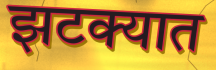
झटक्‍यात